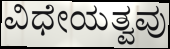
ವಿಧೇಯತ್ವವು